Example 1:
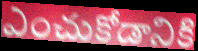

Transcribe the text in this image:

ఎంచుకోడానికి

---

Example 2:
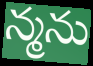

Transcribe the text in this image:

న్మను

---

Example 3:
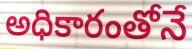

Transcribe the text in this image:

అధికారంతోనే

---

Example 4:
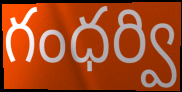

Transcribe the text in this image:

గంధర్వి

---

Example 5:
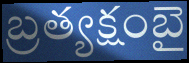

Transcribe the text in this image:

బ్రత్యక్షంబై